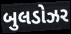
બુલડોઝર